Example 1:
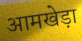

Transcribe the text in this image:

आमखेड़ा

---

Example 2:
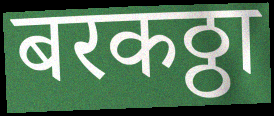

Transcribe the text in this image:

बरकठ्ठा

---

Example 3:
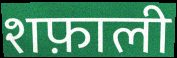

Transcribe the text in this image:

शफ़ाली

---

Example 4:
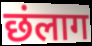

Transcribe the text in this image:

छंलाग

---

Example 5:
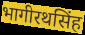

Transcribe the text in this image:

भागीरथसिंह